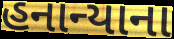
હનાન્યાના